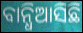
ବାନ୍ଧିଆସିଛି